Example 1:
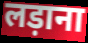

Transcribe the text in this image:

लड़ाना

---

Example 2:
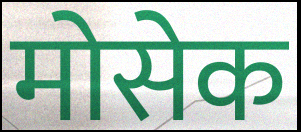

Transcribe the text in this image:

मोसेक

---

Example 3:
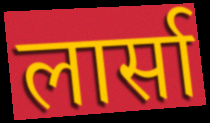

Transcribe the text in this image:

लार्सा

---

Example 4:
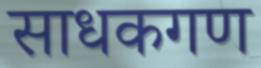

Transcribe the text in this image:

साधकगण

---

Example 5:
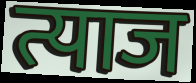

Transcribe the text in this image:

त्याज